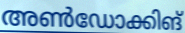
അൺഡോക്കിങ്